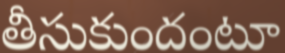
తీసుకుందంటూ